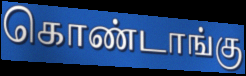
கொண்டாங்கு